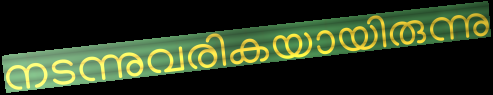
നടന്നുവരികയായിരുന്നു